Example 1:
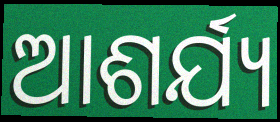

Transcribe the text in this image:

ଆଶର୍ଯ୍ୟ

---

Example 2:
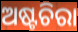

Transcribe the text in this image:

ଅଷ୍ଟଚିରା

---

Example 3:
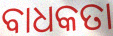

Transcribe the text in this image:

ବାଧକତା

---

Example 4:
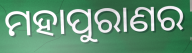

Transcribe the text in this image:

ମହାପୁରାଣର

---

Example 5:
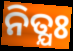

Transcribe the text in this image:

ନିତ୍ଯଃ